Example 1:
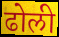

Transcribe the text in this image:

ढोली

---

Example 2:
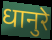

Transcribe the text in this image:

धानुरे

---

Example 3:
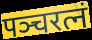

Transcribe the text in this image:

पञ्चरत्नं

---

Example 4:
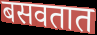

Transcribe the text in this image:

बसवतात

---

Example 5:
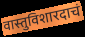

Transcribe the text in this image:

वास्तुविशारदाचं